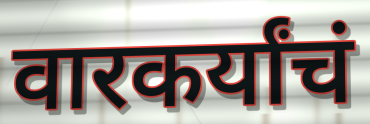
वारकर्यांचं